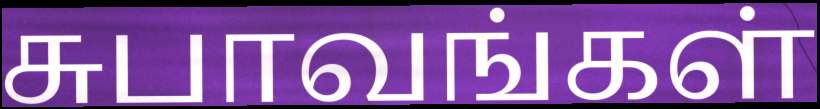
சுபாவங்கள்